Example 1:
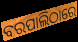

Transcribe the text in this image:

ବରପାଲିଠାରେ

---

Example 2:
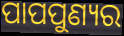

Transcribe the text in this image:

ପାପପୁଣ୍ୟର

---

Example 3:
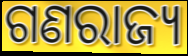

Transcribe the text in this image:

ଗଣରାଜ୍ୟ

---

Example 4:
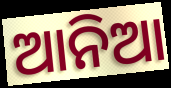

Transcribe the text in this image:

ଆନିଆ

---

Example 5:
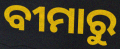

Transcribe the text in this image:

ବୀମାରୁ